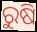
ରୁଷି